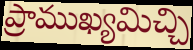
ప్రాముఖ్యమిచ్చి